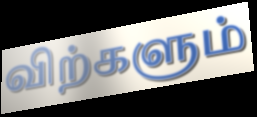
விற்களும்